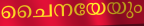
ചൈനയേയും